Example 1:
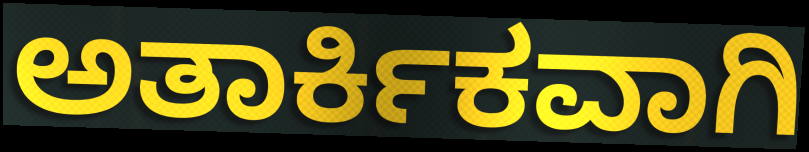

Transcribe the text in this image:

ಅತಾರ್ಕಿಕವಾಗಿ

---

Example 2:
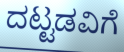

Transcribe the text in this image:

ದಟ್ಟಡವಿಗೆ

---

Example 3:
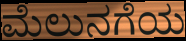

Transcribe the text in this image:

ಮೆಲುನಗೆಯ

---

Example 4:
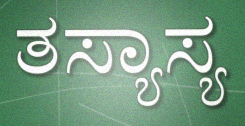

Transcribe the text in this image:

ತಸ್ಯಾಸ್ಯ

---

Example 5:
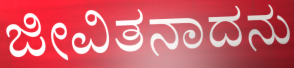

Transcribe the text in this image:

ಜೀವಿತನಾದನು